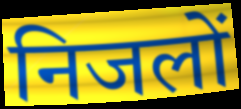
निजलों